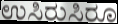
ಉಸಿರುಸಿರೂ